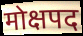
मोक्षपद